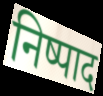
निष्पाद